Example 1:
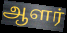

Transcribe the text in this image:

ஆளர்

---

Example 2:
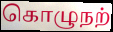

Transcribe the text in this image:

கொழுநற்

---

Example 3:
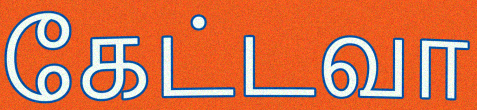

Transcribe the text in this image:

கேட்டவா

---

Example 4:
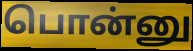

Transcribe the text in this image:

பொன்னு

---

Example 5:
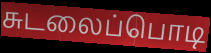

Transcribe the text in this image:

சுடலைப்பொடி